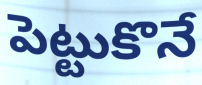
పెట్టుకొనే